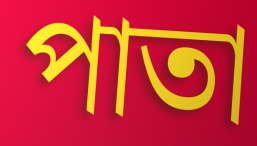
পাতা